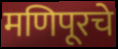
मणिपूरचे